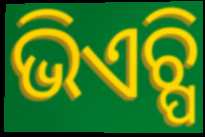
ଭିଏଚ୍ପି